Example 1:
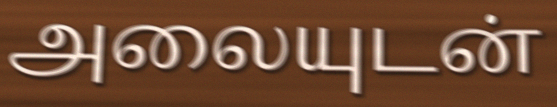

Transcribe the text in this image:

அலையுடன்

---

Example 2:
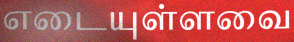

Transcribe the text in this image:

எடையுள்ளவை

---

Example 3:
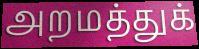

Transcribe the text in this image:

அறமத்துக்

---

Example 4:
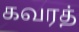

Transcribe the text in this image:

கவரத்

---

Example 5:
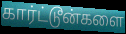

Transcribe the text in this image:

கார்ட்டூன்களை